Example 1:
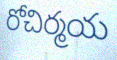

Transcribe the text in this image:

రోచిర్మయ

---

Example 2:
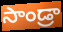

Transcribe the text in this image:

సాండ్రా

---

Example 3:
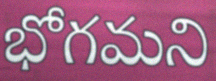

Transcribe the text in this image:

భోగమని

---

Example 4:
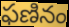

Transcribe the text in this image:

ఫణినం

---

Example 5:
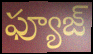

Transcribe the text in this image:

ఫ్యూజ్